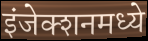
इंजेक्शनमध्ये